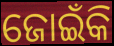
ଜୋଇଁକି